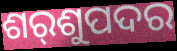
ଶର୍‌ଶୁପଦର